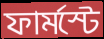
ফার্মস্টে